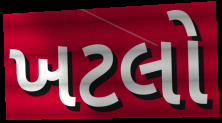
ખટલો